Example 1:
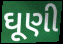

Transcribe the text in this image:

ઘૂણી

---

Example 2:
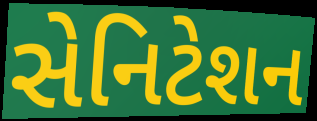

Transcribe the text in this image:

સેનિટેશન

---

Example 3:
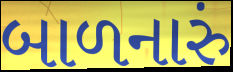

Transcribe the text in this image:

બાળનારું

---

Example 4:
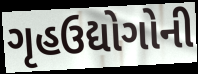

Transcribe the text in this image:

ગૃહઉદ્યોગોની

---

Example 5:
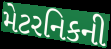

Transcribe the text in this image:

મેટરનિકની